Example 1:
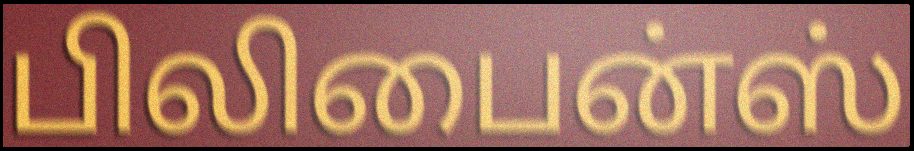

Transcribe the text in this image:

பிலிபைன்ஸ்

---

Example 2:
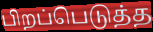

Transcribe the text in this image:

பிறப்பெடுத்த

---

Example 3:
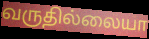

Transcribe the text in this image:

வருதில்லையா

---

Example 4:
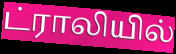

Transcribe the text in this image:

ட்ராலியில்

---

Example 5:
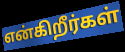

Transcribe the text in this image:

என்கிறீர்கள்